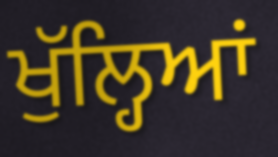
ਖੁੱਲ੍ਹਿਆਂ